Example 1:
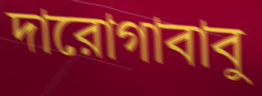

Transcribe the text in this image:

দারোগাবাবু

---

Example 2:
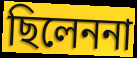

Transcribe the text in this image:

ছিলেননা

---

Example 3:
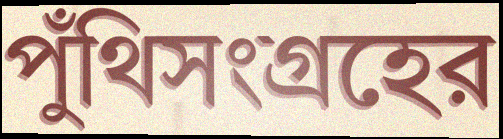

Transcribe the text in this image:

পুঁথিসংগ্রহের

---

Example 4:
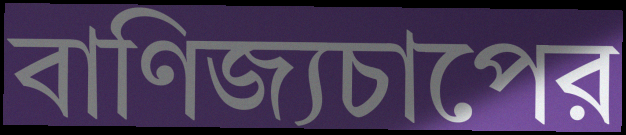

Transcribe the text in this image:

বাণিজ্যচাপের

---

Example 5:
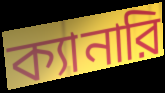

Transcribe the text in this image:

ক্যানারি